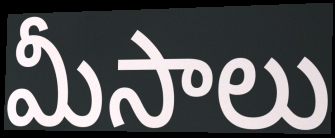
మీసాలు